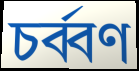
চর্ব্বণ